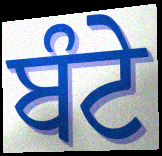
ਬੰਟੇ